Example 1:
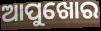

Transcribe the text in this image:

ଆପୁଖୋର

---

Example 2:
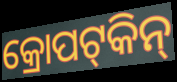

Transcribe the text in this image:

କ୍ରୋପଟ୍‍କିନ୍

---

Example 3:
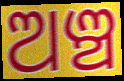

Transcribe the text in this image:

ଅଞ୍ଚ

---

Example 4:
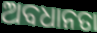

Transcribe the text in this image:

ଅବଧାନତା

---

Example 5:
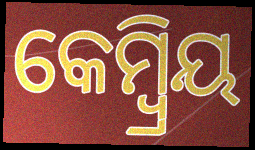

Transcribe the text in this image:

କେମ୍ବ୍ରିୟ